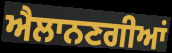
ਐਲਾਨਣਗੀਆਂ